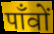
पाँवों